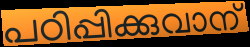
പഠിപ്പിക്കുവാന്